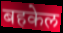
बहकेल